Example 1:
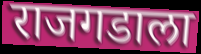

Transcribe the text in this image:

राजगडाला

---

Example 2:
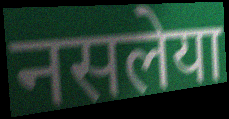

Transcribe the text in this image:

नसलेया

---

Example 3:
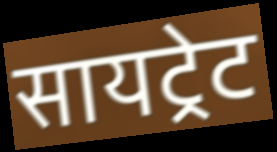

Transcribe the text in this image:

सायट्रेट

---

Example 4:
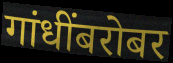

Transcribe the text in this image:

गांधींबरोबर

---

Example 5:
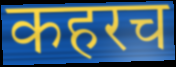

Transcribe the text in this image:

कहरच